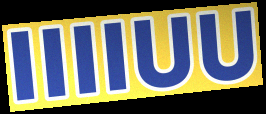
IIIIUU